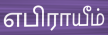
எபிராயீம்